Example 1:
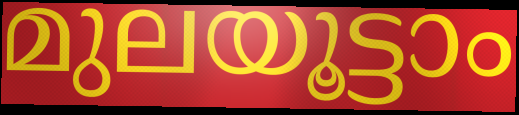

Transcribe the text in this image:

മുലയൂട്ടാം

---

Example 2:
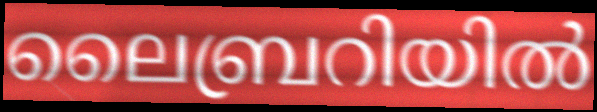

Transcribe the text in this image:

ലൈബ്രറിയിൽ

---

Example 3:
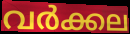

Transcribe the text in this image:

വർക്കല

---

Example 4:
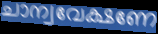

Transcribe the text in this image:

ചാന്വവേക്ഷണേ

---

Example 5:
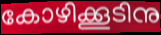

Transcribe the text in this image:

കോഴിക്കൂടിനു